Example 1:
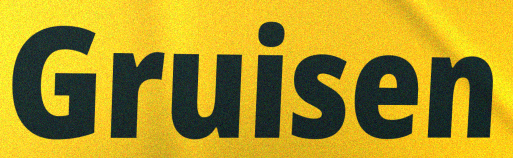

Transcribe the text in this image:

Gruisen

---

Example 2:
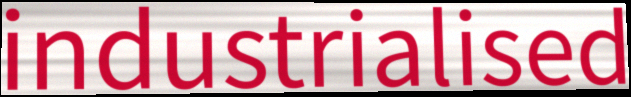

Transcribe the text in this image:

industrialised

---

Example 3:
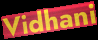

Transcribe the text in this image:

Vidhani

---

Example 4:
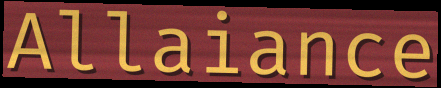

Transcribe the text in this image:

Allaiance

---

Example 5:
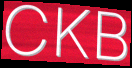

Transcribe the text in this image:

CKB